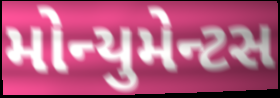
મોન્યુમેન્ટસ